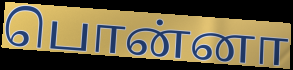
பொன்னா